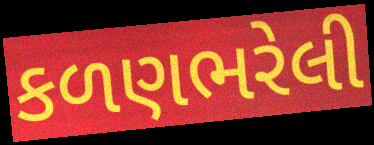
કળણભરેલી